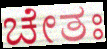
ಚೇತಃ